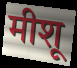
मीशू